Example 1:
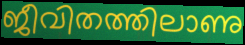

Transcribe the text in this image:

ജീവിതത്തിലാണു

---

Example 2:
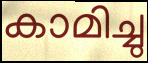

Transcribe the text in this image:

കാമിച്ചു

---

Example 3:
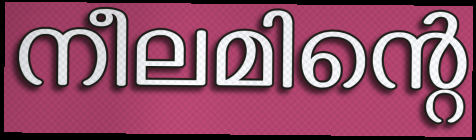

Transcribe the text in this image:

നീലമിന്റെ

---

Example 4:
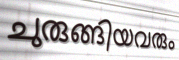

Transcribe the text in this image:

ചുരുങ്ങിയവരും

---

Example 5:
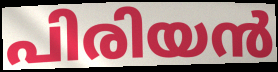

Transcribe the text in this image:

പിരിയൻ